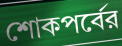
শোকপর্বের